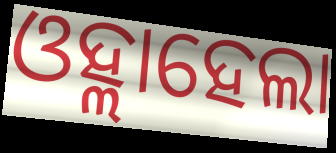
ଓହ୍ଲାହେଲା